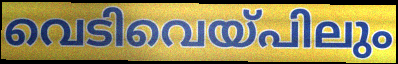
വെടിവെയ്പിലും